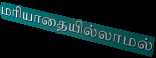
மரியாதையில்லாமல்